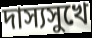
দাস্যসুখে